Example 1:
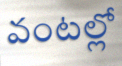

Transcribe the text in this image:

వంటల్లో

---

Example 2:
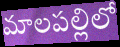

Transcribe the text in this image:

మాలపల్లిలో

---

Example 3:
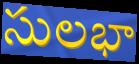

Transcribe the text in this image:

సులభా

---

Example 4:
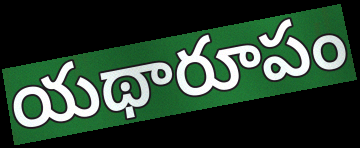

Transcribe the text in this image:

యథారూపం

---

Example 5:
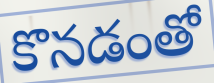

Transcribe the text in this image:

కొనడంతో